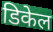
डिकेल